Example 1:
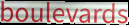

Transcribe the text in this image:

boulevards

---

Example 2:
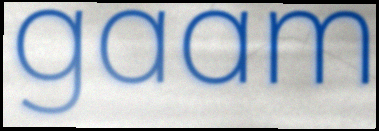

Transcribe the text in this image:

gaam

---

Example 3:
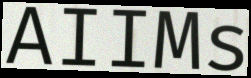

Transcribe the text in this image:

AIIMs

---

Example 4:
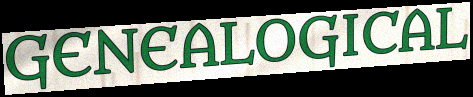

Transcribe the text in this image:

GENEALOGICAL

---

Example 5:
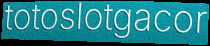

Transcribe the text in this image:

totoslotgacor